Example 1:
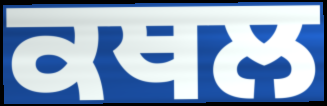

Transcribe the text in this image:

ਕਥਲ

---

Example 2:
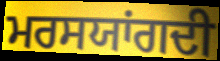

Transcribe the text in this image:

ਮਰਸਯਾਂਗਦੀ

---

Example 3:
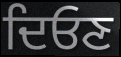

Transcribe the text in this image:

ਦਿਓਣ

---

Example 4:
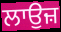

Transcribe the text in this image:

ਲਾਉਜ਼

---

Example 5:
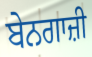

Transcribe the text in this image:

ਬੇਨਗਾਜ਼ੀ